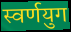
स्वर्णयुग